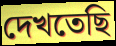
দেখতেছি